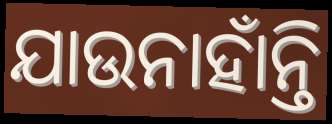
ଯାଉନାହାଁନ୍ତି